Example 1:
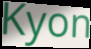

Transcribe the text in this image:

Kyon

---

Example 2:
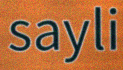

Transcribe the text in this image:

sayli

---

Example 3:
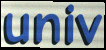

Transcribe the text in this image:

univ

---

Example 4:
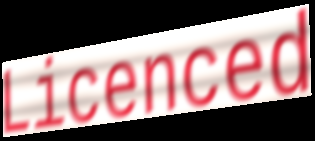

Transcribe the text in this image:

Licenced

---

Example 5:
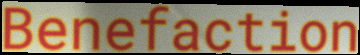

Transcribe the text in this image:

Benefaction